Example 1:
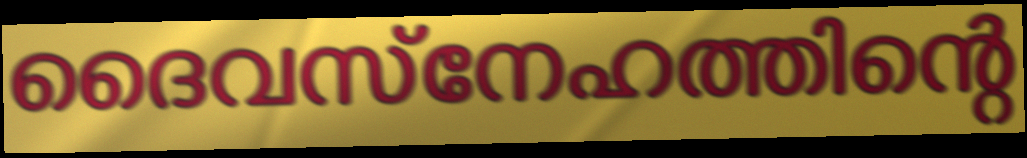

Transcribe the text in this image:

ദൈവസ്‌നേഹത്തിന്റെ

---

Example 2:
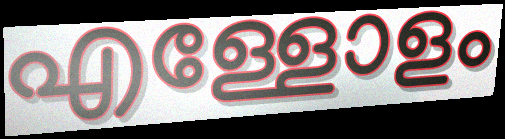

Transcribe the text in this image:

എള്ളോളം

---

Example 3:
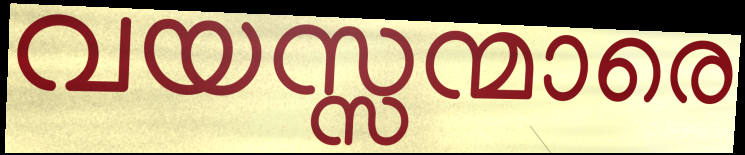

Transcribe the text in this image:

വയസ്സന്മാരെ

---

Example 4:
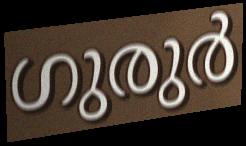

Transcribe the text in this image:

ഗുരുർ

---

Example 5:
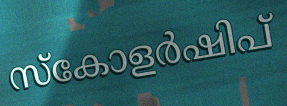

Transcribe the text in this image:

സ്കോളർഷിപ്